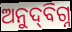
ଅନୁଦ୍‌ବିଗ୍ନ